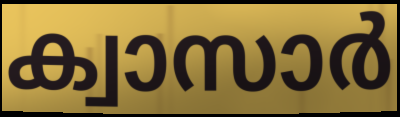
ക്വാസാർ